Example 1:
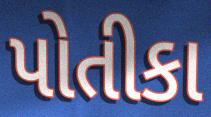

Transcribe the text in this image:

પોતીકા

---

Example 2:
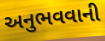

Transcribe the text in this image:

અનુભવવાની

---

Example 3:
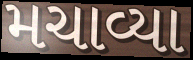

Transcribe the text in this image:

મચાવ્યા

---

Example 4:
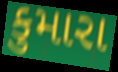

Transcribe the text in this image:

કુમારા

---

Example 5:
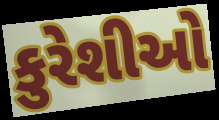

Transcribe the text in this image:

કુરેશીઓ